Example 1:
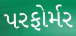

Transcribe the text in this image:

પરફોર્મર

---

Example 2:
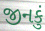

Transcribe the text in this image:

જીનકું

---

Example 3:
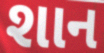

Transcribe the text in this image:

શાન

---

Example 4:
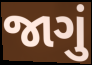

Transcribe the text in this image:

જાગું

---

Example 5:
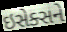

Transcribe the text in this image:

ઇસેક્સને